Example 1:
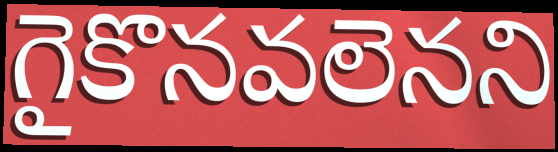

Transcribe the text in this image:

గైకొనవలెనని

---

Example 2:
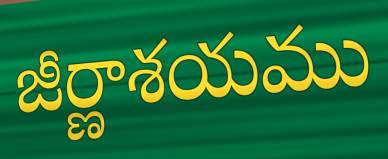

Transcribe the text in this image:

జీర్ణాశయము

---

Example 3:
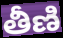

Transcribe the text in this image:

తీణి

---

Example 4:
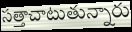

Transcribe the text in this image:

సత్తాచాటుతున్నారు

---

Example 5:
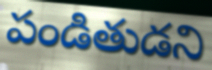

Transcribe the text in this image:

పండితుడని